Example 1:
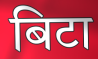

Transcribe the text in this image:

बिटा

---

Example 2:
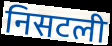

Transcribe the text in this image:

निसटली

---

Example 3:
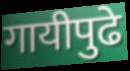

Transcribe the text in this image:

गायीपुढे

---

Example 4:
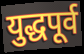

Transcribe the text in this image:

युद्धपूर्व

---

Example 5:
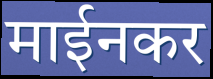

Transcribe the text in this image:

माईनकर